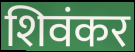
शिवंकर